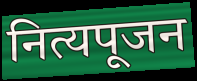
नित्यपूजन